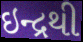
ઇન્દ્રથી